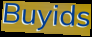
Buyids